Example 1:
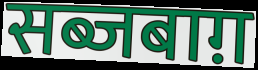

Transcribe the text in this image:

सब्जबाग़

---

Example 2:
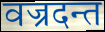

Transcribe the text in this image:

वज्रदन्त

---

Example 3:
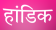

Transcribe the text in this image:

हांडिक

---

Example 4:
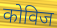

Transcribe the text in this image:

कोविज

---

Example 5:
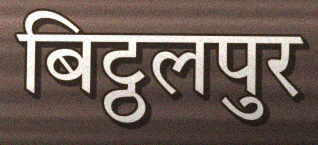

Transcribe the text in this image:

बिट्ठलपुर